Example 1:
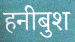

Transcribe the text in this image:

हनीबुश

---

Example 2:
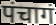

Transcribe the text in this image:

पंचागं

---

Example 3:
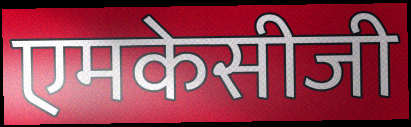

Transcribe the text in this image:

एमकेसीजी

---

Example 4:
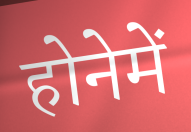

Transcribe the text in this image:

होनेमें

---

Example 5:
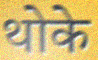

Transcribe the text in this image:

थोके